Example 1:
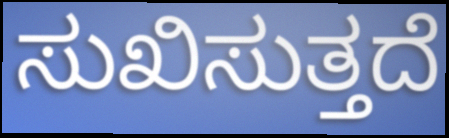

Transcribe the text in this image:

ಸುಖಿಸುತ್ತದೆ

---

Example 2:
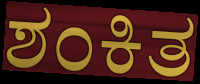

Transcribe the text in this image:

ಶಂಕಿತ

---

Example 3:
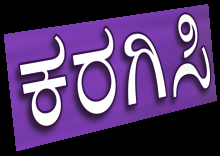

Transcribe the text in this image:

ಕರಗಿಸಿ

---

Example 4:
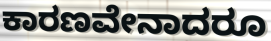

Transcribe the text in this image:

ಕಾರಣವೇನಾದರೂ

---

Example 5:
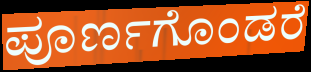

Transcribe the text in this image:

ಪೂರ್ಣಗೊಂಡರೆ